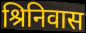
श्रिनिवास